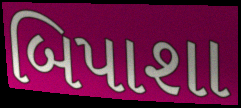
બિપાશા